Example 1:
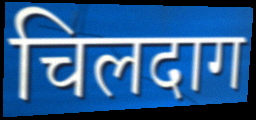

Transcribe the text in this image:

चिलदाग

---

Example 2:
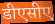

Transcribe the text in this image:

डीएसीए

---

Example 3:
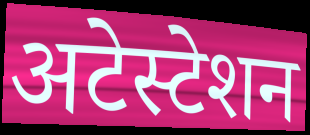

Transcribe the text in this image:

अटेस्टेशन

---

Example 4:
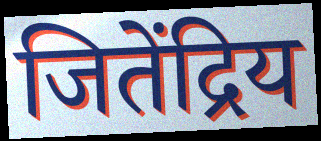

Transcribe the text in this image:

जितेंद्रिय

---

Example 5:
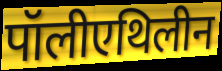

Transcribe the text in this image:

पॉलीएथिलीन